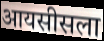
आयसीसला